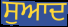
ਸੁਆਦ